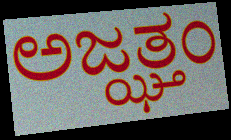
ಅಜ್ಝತ್ತಂ